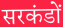
सरकंडों